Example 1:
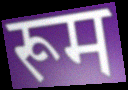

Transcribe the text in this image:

रूम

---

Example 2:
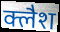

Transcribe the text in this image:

क्लैश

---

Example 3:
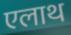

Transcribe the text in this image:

एलाथ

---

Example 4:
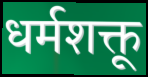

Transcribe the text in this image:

धर्मशक्तू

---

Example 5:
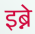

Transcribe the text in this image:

इब्ने